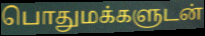
பொதுமக்களுடன்